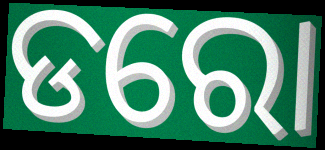
ଡରୋ